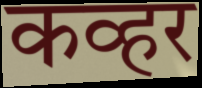
कव्हर